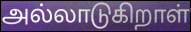
அல்லாடுகிறாள்